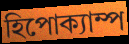
হিপোক্যাম্প